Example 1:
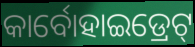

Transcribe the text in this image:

କାର୍ବୋହାଇଡ୍ରେଟ୍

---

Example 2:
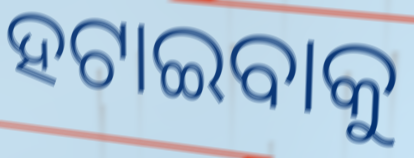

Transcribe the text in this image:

ହଟାଇବାକୁ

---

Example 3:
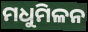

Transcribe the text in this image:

ମଧୁମିଳନ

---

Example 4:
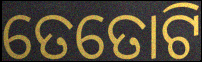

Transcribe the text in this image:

ତେତୋଟି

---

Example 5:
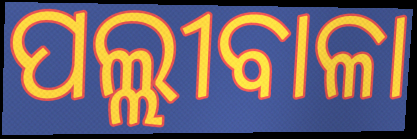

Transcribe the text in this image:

ପଲ୍ଲୀବାଳା